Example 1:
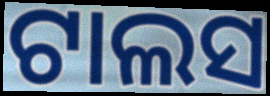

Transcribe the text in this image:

ଟାଲସ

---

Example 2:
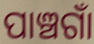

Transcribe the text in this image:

ପାଞ୍ଚଗାଁ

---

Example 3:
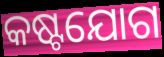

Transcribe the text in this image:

କଷ୍ଟଯୋଗ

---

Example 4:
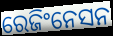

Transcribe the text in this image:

ରେଜିଂନେସନ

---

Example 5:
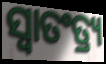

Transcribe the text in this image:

ସ୍ଵାତଂତ୍ର୍ୟ